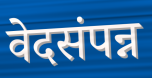
वेदसंपन्न